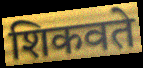
शिकवते